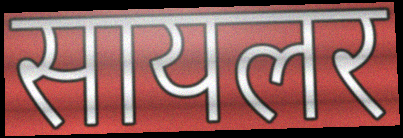
सायलर